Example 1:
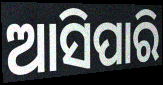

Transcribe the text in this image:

ଆସିପାରି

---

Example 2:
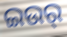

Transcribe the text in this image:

ଇଉର୍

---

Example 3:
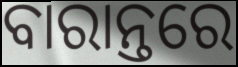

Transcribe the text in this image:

ବାରାନ୍ତରେ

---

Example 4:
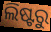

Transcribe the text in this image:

ଲିଷ୍ଟରୁ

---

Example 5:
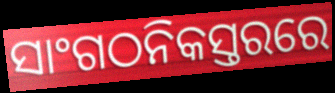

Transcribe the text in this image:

ସାଂଗଠନିକସ୍ତରରେ